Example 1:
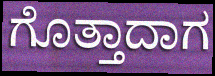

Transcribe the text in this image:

ಗೊತ್ತಾದಾಗ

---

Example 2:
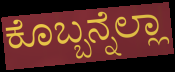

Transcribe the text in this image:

ಕೊಬ್ಬನ್ನೆಲ್ಲಾ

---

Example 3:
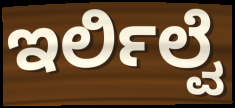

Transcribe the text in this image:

ಇರ್ಲಿಲ್ವೆ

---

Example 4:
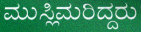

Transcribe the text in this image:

ಮುಸ್ಲಿಮರಿದ್ದರು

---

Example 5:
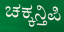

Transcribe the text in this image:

ಚಕ್ಕನ್ತಿಪಿ